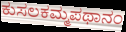
ಕುಸಲಕಮ್ಮಪಥಾನಂ